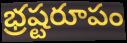
భ్రష్టరూపం